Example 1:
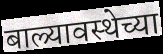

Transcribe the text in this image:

बाल्यावस्थेच्या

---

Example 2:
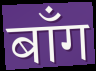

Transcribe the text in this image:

बाँग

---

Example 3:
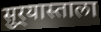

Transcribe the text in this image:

सुर्यास्ताला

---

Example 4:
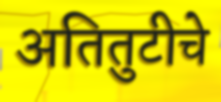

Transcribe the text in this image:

अतितुटीचे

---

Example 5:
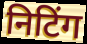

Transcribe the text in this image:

निटिंग